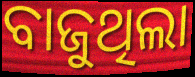
ବାଜୁଥିଲା